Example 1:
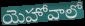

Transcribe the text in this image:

యెహోవాలో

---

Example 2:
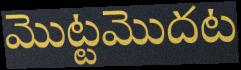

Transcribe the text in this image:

మొట్టమొదట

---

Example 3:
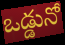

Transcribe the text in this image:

ఒడ్డునో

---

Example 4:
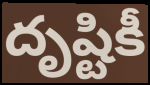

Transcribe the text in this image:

దృష్టికీ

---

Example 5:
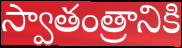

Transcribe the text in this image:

స్వాతంత్రానికి